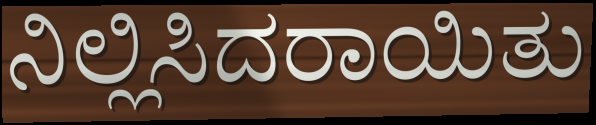
ನಿಲ್ಲಿಸಿದರಾಯಿತು